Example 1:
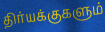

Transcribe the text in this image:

திர்யக்குகளும்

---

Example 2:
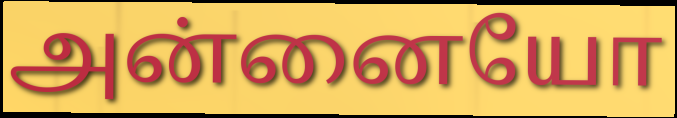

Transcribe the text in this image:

அன்னையோ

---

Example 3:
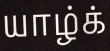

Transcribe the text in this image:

யாழ்க்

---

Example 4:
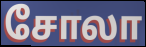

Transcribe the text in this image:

சோலா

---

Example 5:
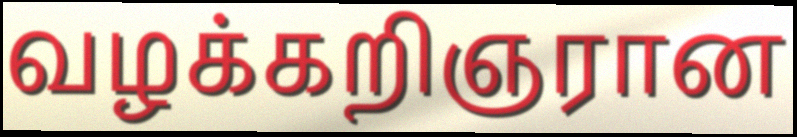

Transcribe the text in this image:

வழக்கறிஞரான